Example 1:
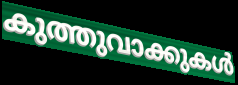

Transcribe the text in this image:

കുത്തുവാക്കുകൾ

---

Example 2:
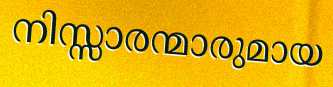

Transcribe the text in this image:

നിസ്സാരന്മാരുമായ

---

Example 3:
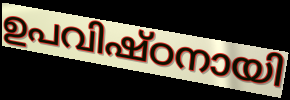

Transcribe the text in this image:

ഉപവിഷ്ഠനായി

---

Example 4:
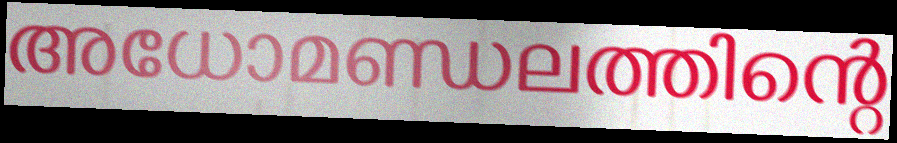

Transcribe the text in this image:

അധോമണ്ഡലത്തിന്റെ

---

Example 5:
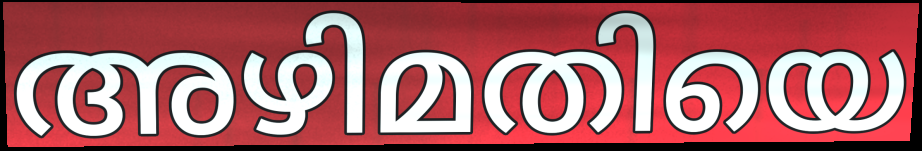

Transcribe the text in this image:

അഴിമതിയെ